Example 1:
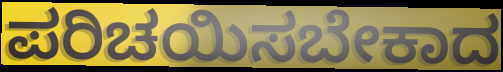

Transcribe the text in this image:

ಪರಿಚಯಿಸಬೇಕಾದ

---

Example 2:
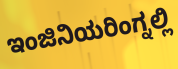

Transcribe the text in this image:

ಇಂಜಿನಿಯರಿಂಗ್ನಲ್ಲಿ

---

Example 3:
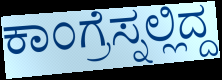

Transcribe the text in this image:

ಕಾಂಗ್ರೆಸ್ನಲ್ಲಿದ್ದ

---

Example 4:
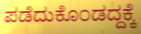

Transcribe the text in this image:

ಪಡೆದುಕೊಂಡದ್ದಕ್ಕೆ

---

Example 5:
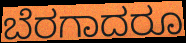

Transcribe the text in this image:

ಬೆರಗಾದರೂ